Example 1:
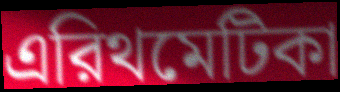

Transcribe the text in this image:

এরিথমেটিকা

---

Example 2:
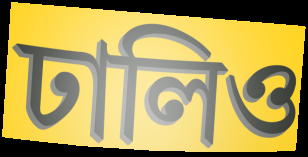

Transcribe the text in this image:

ঢালিও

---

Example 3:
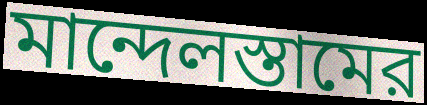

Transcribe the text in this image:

মান্দেলস্তামের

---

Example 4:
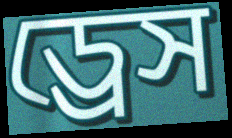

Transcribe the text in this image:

ড্রেস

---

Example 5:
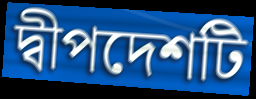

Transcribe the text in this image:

দ্বীপদেশটি